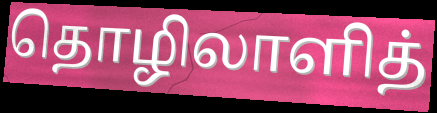
தொழிலாளித்